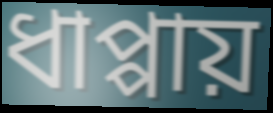
ধাপ্পায়